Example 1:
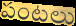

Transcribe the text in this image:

పంటలు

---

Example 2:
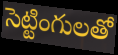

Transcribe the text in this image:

సెట్టింగులతో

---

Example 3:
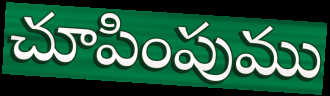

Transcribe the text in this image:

చూపింపుము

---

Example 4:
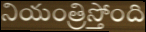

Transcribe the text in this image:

నియంత్రిస్తోంది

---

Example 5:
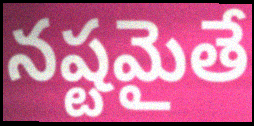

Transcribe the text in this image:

నష్టమైతే